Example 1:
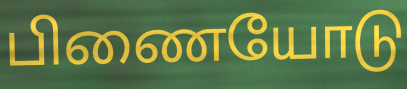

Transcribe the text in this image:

பிணையோடு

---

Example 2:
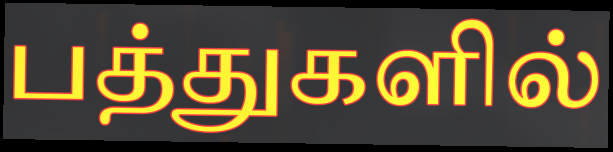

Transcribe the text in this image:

பத்துகளில்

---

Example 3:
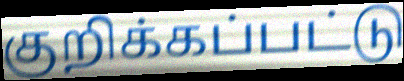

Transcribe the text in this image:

குறிக்கப்பட்டு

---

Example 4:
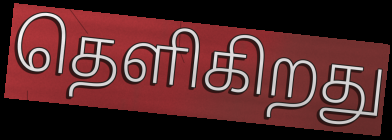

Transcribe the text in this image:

தெளிகிறது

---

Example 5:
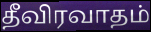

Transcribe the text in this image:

தீவிரவாதம்